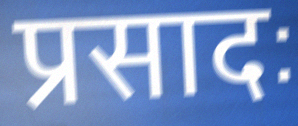
प्रसादः